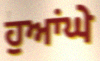
ਹੁਆਂਘੇ